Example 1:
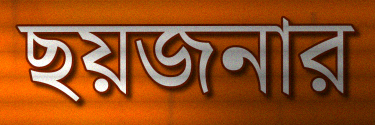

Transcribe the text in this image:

ছয়জনার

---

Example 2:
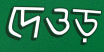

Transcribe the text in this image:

দেওড়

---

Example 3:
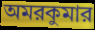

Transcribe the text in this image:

অমরকুমার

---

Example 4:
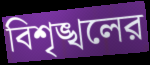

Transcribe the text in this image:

বিশৃঙ্খলের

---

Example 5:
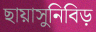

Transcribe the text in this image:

ছায়াসুনিবিড়